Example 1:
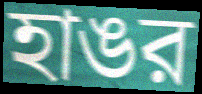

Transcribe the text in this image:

হাঙর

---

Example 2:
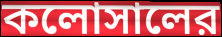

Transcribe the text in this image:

কলোসালের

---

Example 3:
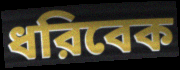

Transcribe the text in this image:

ধরিবেক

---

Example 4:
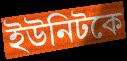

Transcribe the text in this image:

ইউনিটকে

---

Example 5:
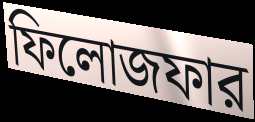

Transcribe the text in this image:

ফিলোজফার